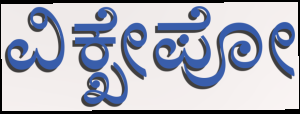
ವಿಕ್ಖೇಪೋ